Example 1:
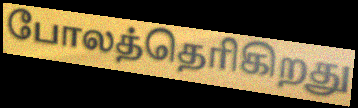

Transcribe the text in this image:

போலத்தெரிகிறது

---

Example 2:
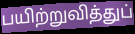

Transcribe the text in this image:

பயிற்றுவித்துப்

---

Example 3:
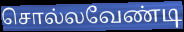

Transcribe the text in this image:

சொல்லவேண்டி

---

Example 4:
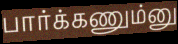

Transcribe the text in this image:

பார்க்கணும்னு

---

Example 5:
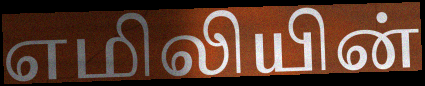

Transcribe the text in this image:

எமிலியின்